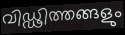
വിഡ്ഢിത്തങ്ങളും